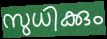
സുധിക്കും